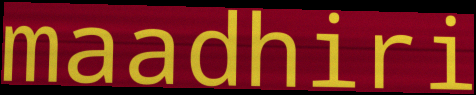
maadhiri